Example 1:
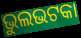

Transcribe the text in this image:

ଭୁଲଭଟକା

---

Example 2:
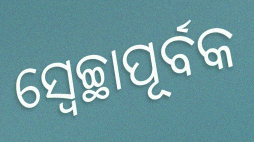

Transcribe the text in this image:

ସ୍ଵେଚ୍ଛାପୂର୍ବକ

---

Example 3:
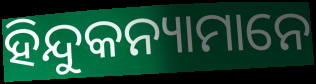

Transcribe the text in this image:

ହିନ୍ଦୁକନ୍ୟାମାନେ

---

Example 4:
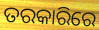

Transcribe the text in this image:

ତରକାରିରେ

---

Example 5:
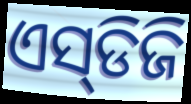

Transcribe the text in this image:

ଏସ୍‌ଡିଜି